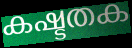
കഷ്ടതക